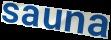
sauna